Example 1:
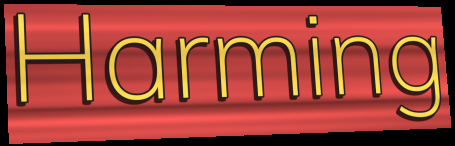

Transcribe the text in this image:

Harming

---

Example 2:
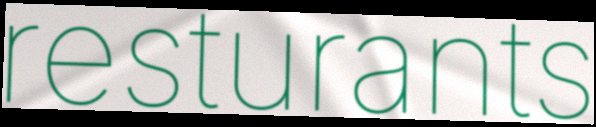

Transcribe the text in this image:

resturants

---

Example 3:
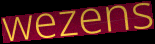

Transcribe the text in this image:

wezens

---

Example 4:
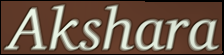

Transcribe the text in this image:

Akshara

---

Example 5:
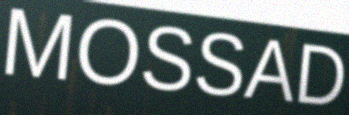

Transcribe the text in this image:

MOSSAD